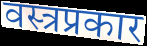
वस्त्रप्रकार